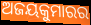
ଅଜୟକୁମାରର